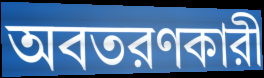
অবতরণকারী